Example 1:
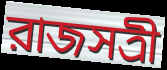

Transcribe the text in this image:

রাজসত্রী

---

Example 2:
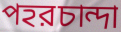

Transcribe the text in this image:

পহরচান্দা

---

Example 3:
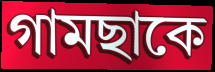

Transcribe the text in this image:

গামছাকে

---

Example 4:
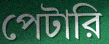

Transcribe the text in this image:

পেটারি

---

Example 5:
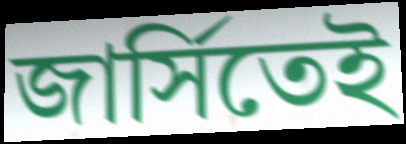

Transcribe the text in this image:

জার্সিতেই